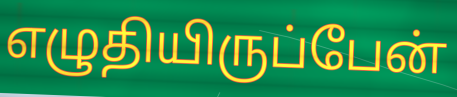
எழுதியிருப்பேன்